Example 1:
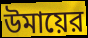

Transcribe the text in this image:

উমায়ের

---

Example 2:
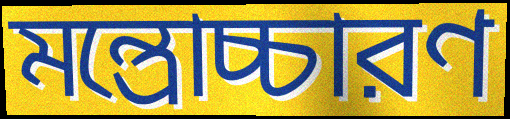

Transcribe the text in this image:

মন্ত্রোচ্চারণ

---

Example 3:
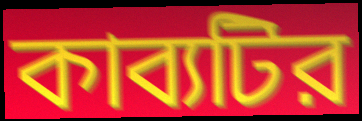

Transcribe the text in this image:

কাব্যটির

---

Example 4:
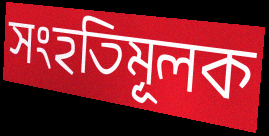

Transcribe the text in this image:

সংহতিমূলক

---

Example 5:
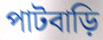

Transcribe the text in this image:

পাটবাড়ি